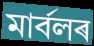
মাৰ্বলৰ